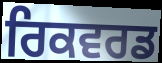
ਰਿਕਵਰਡ